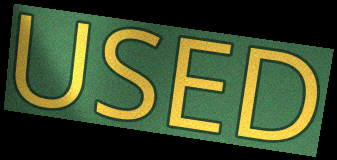
USED